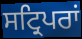
ਸਟ੍ਰਿਪਰਾਂ